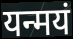
यन्मयं